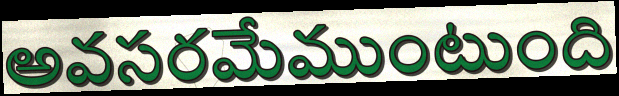
అవసరమేముంటుంది